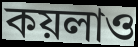
কয়লাও